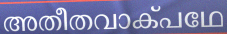
അതീതവാക്പഥേ